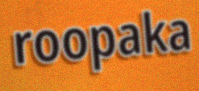
roopaka